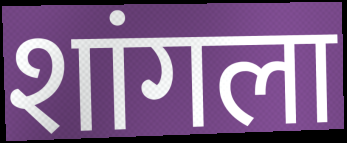
शांगला